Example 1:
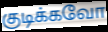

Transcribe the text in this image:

குடிக்கவோ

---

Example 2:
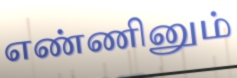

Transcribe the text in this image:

எண்ணினும்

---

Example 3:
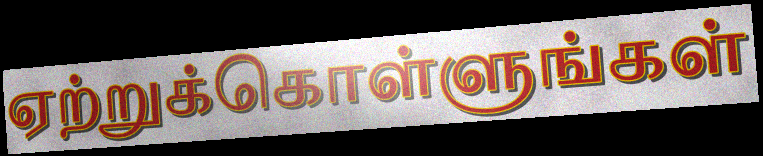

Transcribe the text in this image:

ஏற்றுக்கொள்ளுங்கள்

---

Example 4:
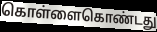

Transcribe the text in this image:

கொள்ளைகொண்டது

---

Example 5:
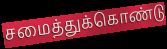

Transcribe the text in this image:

சமைத்துக்கொண்டு